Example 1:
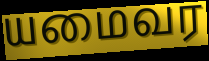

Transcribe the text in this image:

யமைவர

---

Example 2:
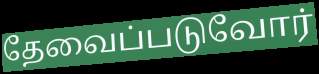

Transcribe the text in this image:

தேவைப்படுவோர்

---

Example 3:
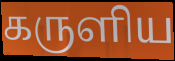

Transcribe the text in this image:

கருளிய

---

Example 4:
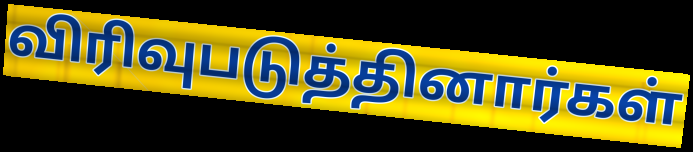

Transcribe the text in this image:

விரிவுபடுத்தினார்கள்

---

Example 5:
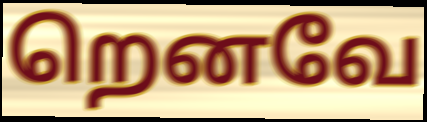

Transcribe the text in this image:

றெனவே